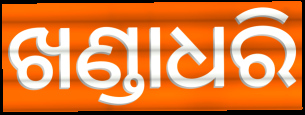
ଖଣ୍ଡାଧରି